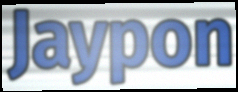
Jaypon